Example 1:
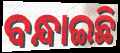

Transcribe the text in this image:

ବନ୍ଧାଇଛି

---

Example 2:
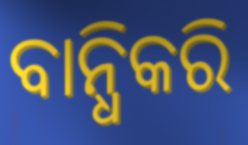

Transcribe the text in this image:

ବାନ୍ଧିକରି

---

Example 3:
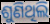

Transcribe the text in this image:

ଶୁଣିଥିଲି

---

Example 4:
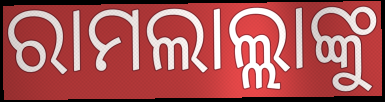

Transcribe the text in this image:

ରାମଲାଲ୍ଲାଙ୍କୁ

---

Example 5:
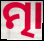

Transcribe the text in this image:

ତ୍ମା